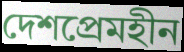
দেশপ্ৰেমহীন